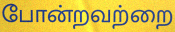
போன்றவற்றை